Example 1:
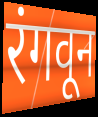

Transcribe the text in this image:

रंगवून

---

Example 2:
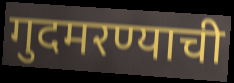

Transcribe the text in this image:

गुदमरण्याची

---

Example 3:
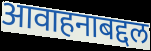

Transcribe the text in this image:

आवाहनाबद्दल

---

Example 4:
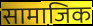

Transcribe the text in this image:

सामाजिक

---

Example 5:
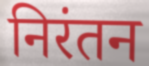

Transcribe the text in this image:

निरंतन